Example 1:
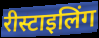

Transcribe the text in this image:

रीस्टाइलिंग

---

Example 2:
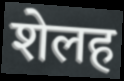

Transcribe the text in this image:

शेलह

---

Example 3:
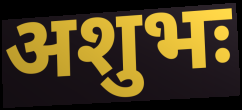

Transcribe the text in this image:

अशुभः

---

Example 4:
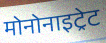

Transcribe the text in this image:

मोनोनाइट्रेट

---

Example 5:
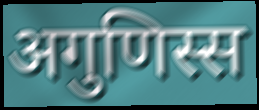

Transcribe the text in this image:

अगुणिस्स